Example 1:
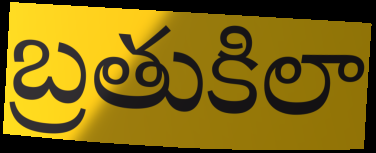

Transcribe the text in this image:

బ్రతుకిలా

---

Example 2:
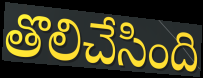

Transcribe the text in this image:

తొలిచేసింది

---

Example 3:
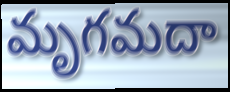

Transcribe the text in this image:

మృగమదా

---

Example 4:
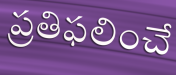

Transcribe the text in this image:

ప్రతిఫలించే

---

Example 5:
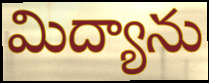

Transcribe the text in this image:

మిద్యాను